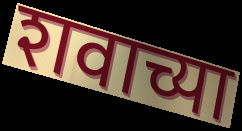
शवाच्या